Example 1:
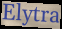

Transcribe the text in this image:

Elytra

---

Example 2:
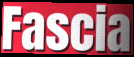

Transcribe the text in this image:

Fascia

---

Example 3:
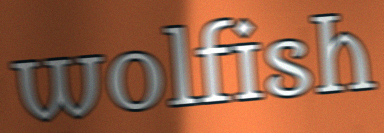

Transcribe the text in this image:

wolfish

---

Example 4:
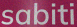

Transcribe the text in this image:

sabiti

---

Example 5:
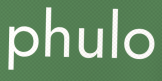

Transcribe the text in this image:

phulo